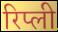
रिप्ली